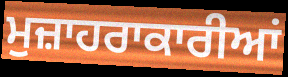
ਮੁਜ਼ਾਹਰਾਕਾਰੀਆਂ